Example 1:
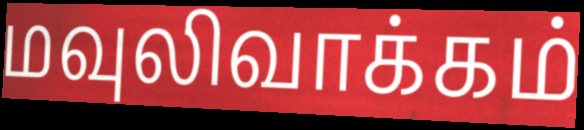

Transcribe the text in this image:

மவுலிவாக்கம்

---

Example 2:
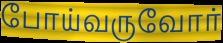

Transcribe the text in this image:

போய்வருவோர்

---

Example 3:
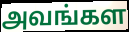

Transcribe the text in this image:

அவங்கள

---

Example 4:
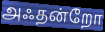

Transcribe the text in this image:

அஃதன்றோ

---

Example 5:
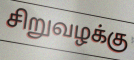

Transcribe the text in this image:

சிறுவழக்கு